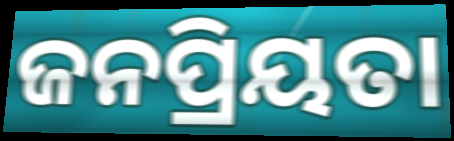
ଜନପ୍ରିୟତା